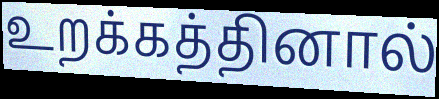
உறக்கத்தினால்